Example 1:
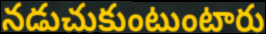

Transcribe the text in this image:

నడుచుకుంటుంటారు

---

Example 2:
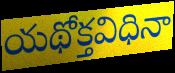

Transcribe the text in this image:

యథోక్తవిధినా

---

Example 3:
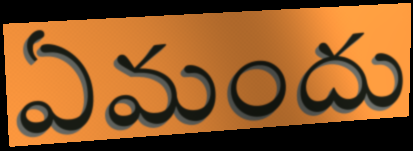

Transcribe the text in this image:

ఏమందు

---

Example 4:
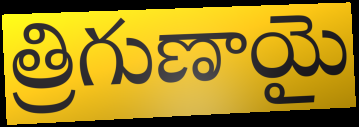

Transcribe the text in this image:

త్రిగుణాయై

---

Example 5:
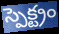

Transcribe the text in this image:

స్పెక్ట్రం